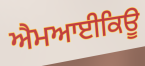
ਐਮਆਈਕਿਊ